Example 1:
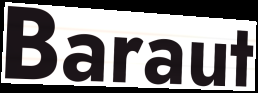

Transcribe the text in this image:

Baraut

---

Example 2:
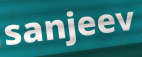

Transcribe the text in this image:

sanjeev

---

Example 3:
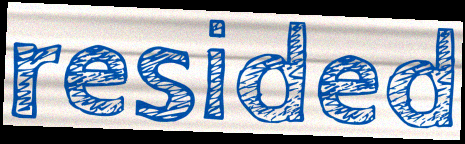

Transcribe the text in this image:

resided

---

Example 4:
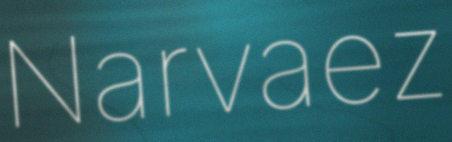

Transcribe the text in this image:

Narvaez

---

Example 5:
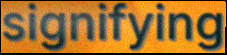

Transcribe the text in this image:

signifying